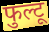
फुल्टू